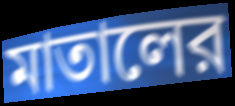
মাতালের